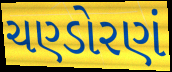
ચણ્ડોરણં